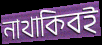
নাথাকিবই